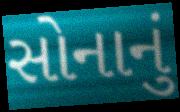
સોનાનું